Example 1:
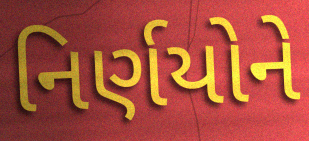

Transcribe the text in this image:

નિર્ણયોને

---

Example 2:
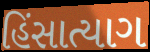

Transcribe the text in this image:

હિંસાત્યાગ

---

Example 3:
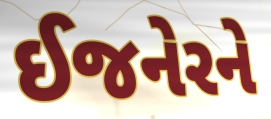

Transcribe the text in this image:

ઈજનેરને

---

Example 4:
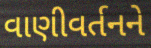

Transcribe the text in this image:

વાણીવર્તનને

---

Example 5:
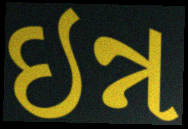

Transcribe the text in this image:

ઇન્ન